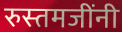
रुस्तमजींनी